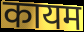
कायम